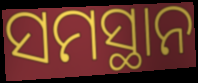
ସମସ୍ଥାନ